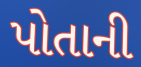
પોતાની